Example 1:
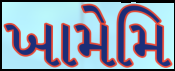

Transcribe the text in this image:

ખામેમિ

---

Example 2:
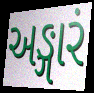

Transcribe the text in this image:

અઙ્ગારં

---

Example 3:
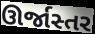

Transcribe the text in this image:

ઊર્જાસ્તર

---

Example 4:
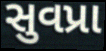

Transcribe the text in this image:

સુવપ્રા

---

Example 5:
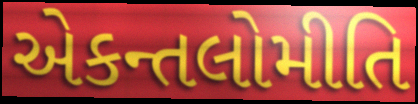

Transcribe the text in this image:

એકન્તલોમીતિ